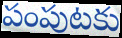
పంపుటకు